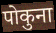
पोकुना